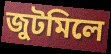
জুটমিলে